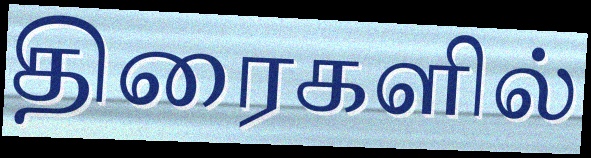
திரைகளில்